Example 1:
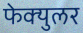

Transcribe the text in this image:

फेक्युलर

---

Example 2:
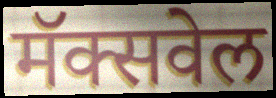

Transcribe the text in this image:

मॅक्सवेल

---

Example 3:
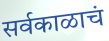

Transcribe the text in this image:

सर्वकाळाचं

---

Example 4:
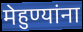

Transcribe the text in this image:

मेहुण्यांना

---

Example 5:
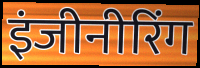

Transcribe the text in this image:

इंजीनीरिंग